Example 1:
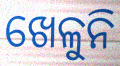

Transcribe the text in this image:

ଖେଳୁନି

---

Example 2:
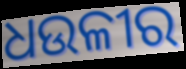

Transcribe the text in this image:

ଧଉଳୀର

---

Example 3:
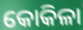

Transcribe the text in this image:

କୋକିଳା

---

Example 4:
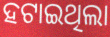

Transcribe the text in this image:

ହଟାଇଥିଲା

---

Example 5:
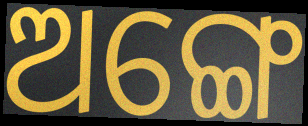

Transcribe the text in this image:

ଅଙ୍ଗେ